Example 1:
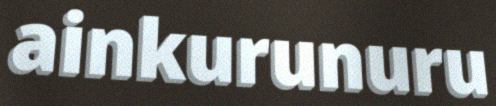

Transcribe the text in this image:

ainkurunuru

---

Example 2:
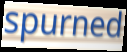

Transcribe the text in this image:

spurned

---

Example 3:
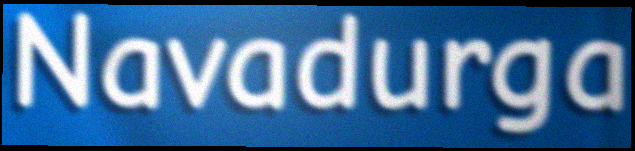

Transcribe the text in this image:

Navadurga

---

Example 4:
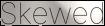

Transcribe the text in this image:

Skewed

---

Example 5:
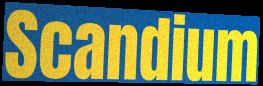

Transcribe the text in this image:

Scandium